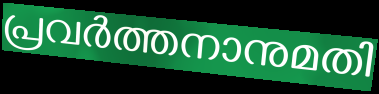
പ്രവർത്തനാനുമതി